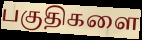
பகுதிகளை